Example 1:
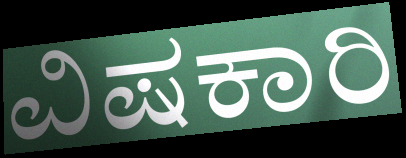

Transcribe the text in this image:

ವಿಷಕಾರಿ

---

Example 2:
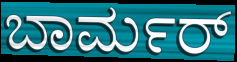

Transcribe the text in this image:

ಬಾರ್ಮರ್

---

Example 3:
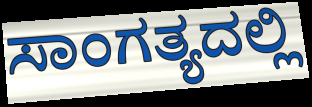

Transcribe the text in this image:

ಸಾಂಗತ್ಯದಲ್ಲಿ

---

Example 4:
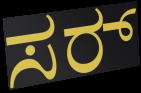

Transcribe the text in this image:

ಸರ‍್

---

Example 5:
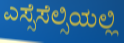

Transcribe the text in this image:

ಎಸ್ಸೆಸೆಲ್ಸಿಯಲ್ಲಿ